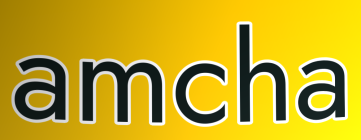
amcha